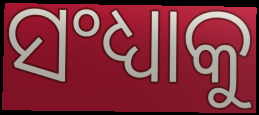
ସଂଧ୍ୟାକୁ